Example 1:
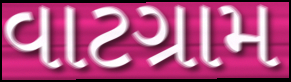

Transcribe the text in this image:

વાટગ્રામ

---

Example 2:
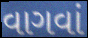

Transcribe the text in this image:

વાગવાં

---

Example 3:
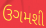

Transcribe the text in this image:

ઉગમશી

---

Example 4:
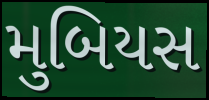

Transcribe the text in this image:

મુબિયસ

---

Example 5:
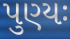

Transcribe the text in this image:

પુણ્યઃ